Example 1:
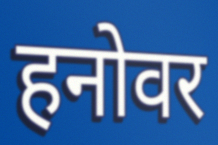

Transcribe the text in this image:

हनोवर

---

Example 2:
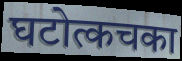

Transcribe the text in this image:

घटोत्कचका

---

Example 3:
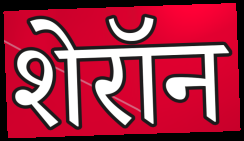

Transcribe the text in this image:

शेरॉन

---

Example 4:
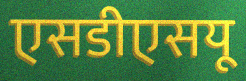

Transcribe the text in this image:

एसडीएसयू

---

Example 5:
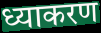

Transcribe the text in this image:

ध्याकरण